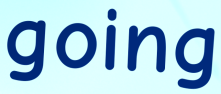
going